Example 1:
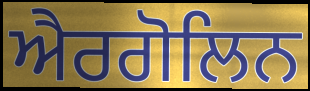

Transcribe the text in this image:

ਐਰਗੋਲਿਨ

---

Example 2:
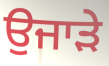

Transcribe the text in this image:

ਉਜਾੜੇ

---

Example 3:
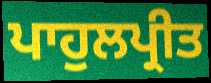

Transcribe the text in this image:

ਪਾਹੁਲਪ੍ਰੀਤ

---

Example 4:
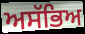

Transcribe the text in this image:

ਅਸੱਭਿਅ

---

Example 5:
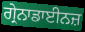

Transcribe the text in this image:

ਗ੍ਰੇਨਾਡਾਈਨਜ਼